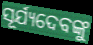
ସୂର୍ଯ୍ୟଦେବଙ୍କୁ